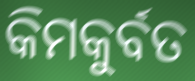
କିମକୁର୍ବତ